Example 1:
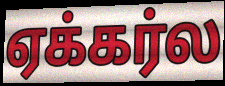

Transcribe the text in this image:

ஏக்கர்ல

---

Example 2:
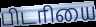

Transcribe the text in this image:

பிடரியை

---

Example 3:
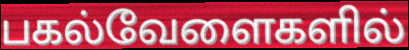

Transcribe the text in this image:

பகல்வேளைகளில்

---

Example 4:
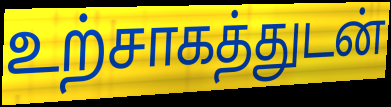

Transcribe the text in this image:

உற்சாகத்துடன்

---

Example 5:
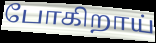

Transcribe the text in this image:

போகிறாய்